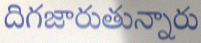
దిగజారుతున్నారు